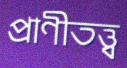
প্রাণীতত্ত্ব